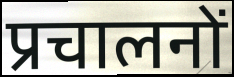
प्रचालनों